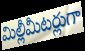
మిల్లీమీటర్లుగా